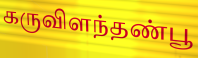
கருவிளந்தண்பூ